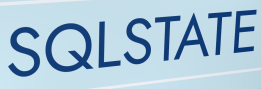
SQLSTATE